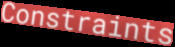
Constraints